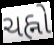
ચહ્નો